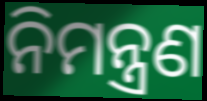
ନିମନ୍ତ୍ରଣ